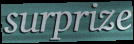
surprize